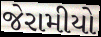
જેરામીયો